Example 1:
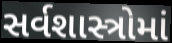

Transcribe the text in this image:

સર્વશાસ્ત્રોમાં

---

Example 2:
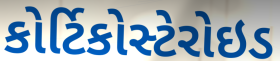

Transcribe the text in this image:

કોર્ટિકોસ્ટેરોઇડ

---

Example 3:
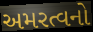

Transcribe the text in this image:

અમરત્વનો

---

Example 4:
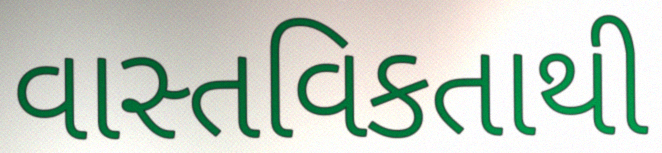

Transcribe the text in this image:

વાસ્તવિકતાથી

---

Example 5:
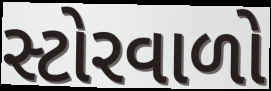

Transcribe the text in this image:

સ્ટોરવાળો